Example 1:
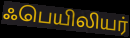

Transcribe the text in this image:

ஃபெயிலியர்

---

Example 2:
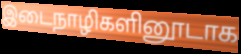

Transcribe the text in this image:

இடைநாழிகளினூடாக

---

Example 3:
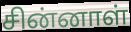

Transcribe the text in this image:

சின்னாள்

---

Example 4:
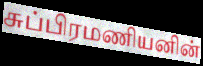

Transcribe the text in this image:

சுப்பிரமணியனின்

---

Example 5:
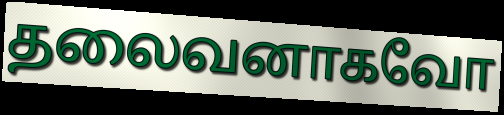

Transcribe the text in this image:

தலைவனாகவோ